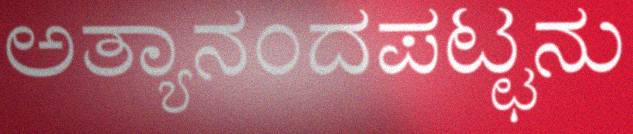
ಅತ್ಯಾನಂದಪಟ್ಟನು